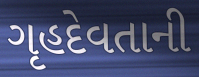
ગૃહદેવતાની